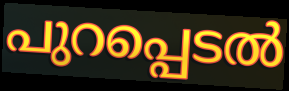
പുറപ്പെടൽ